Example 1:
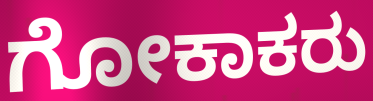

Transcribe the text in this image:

ಗೋಕಾಕರು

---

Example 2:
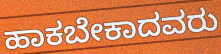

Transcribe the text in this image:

ಹಾಕಬೇಕಾದವರು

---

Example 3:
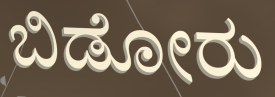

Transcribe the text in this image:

ಬಿಡೋರು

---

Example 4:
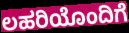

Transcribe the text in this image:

ಲಹರಿಯೊಂದಿಗೆ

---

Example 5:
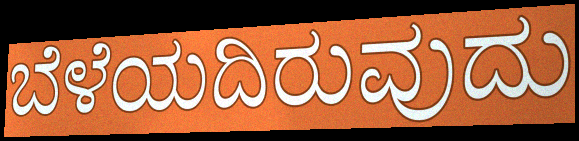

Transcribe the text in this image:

ಬೆಳೆಯದಿರುವುದು